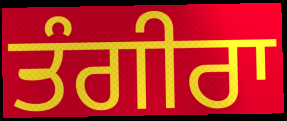
ਤੰਗੀਰਾ